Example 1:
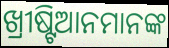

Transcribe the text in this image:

ଖ୍ରୀଷ୍ଟିଆନମାନଙ୍କ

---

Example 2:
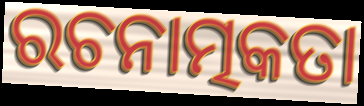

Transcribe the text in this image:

ରଚନାତ୍ମକତା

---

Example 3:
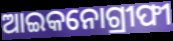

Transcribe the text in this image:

ଆଇକନୋଗ୍ରୀଫୀ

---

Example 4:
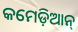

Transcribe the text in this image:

କମେଡ଼ିଆନ୍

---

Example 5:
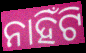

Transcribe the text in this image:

ନାହିଁଟି